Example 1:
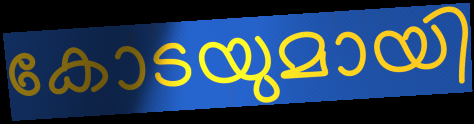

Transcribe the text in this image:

കോടയുമായി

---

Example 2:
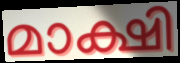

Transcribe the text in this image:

മാക്ഷി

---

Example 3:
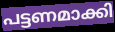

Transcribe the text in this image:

പട്ടണമാക്കി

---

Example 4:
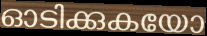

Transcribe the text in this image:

ഓടിക്കുകയോ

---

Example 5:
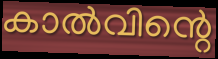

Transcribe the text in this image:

കാൽവിന്റെ